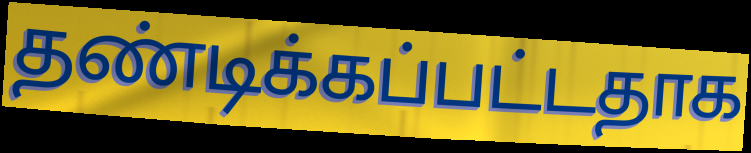
தண்டிக்கப்பட்டதாக